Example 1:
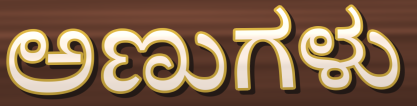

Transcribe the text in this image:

ಅಣುಗಳು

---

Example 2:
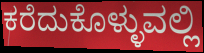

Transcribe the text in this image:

ಕರೆದುಕೊಳ್ಳುವಲ್ಲಿ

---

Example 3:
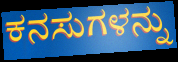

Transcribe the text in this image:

ಕನಸುಗಳನ್ನು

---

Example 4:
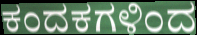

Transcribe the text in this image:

ಕಂದಕಗಳಿಂದ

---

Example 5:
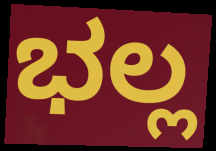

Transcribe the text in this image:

ಭಲ್ಲ